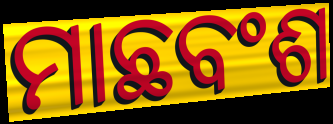
ମାଛବଂଶ